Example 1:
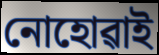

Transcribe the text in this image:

নোহোৱাই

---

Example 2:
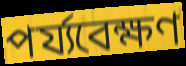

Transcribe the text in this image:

পৰ্য্যবেক্ষণ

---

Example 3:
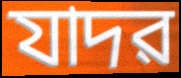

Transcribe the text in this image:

যাদৱ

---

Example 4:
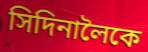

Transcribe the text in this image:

সিদিনালৈকে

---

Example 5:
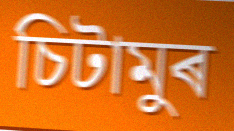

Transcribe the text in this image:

চিটামুৰ